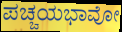
ಪಚ್ಚಯಭಾವೋ